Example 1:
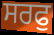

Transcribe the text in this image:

ਸਰਫੁ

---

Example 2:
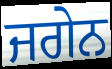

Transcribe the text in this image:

ਜਗੇਨ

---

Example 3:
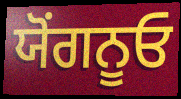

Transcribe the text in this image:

ਯੋਂਗਨੂਓ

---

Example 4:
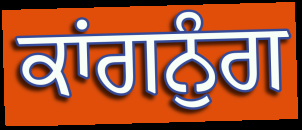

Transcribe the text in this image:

ਕਾਂਗਨੁੰਗ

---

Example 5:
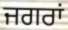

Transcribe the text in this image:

ਜਗਰਾਂ